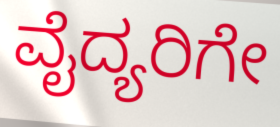
ವೈದ್ಯರಿಗೇ